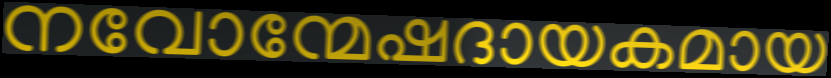
നവോന്മേഷദായകമായ